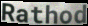
Rathod